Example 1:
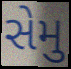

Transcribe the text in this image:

સેમુ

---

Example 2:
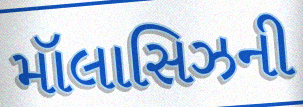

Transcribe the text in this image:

મૉલાસિઝની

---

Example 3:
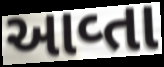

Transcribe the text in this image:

આવ્તા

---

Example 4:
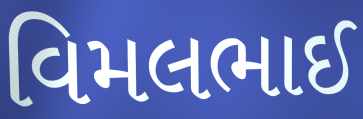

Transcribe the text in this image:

વિમલભાઈ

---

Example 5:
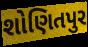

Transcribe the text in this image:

શોણિતપુર